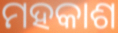
ମହକାଶ